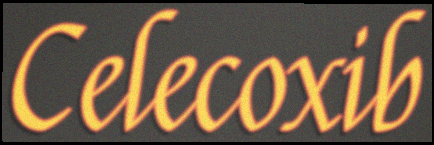
Celecoxib